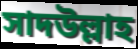
সাদউল্লাহ